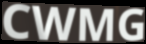
CWMG